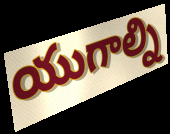
యుగాల్ని